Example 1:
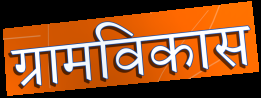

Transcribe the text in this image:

ग्रामविकास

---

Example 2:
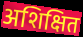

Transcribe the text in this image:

अशिक्षित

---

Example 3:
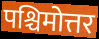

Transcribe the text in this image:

पश्चिमोत्तर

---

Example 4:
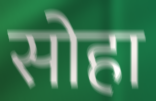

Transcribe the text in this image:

सोहा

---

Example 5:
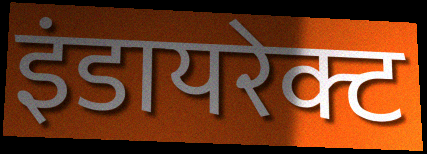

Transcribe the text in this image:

इंडायरेक्ट